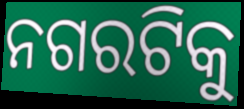
ନଗରଟିକୁ